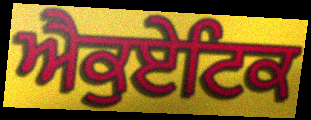
ਐਕੁਏਟਿਕ